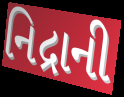
નિદ્રાની